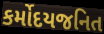
કર્મોદયજનિત